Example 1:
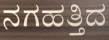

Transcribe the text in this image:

ನಗಹತ್ತಿದ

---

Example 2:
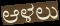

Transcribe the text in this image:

ಆಳಲು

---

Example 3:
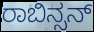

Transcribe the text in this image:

ರಾಬಿನ್ಸನ್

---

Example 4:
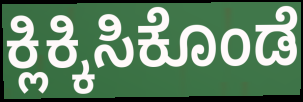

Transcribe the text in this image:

ಕ್ಲಿಕ್ಕಿಸಿಕೊಂಡೆ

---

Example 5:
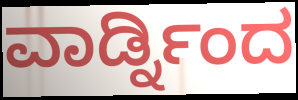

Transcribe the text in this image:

ವಾರ್ಡ್ನಿಂದ